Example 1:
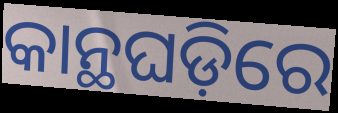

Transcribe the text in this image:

କାନ୍ଥଘଡ଼ିରେ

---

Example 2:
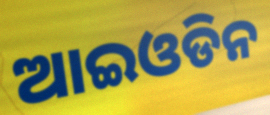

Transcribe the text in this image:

ଆଇଓଡିନ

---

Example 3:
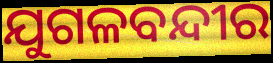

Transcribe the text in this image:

ଯୁଗଳବନ୍ଦୀର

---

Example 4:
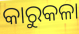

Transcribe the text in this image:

କାରୁକଳା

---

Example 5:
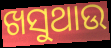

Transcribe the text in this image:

ଖସୁଥାଉ